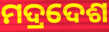
ମଦ୍ରଦେଶ